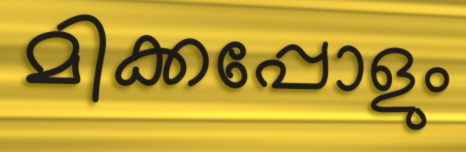
മിക്കപ്പോളും